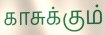
காசுக்கும்